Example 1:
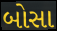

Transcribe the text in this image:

બોસા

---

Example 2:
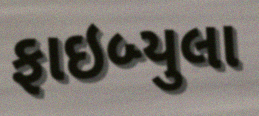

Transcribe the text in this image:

ફાઇબ્યુલા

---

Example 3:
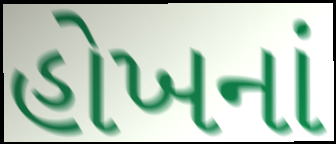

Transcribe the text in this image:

હોખનાં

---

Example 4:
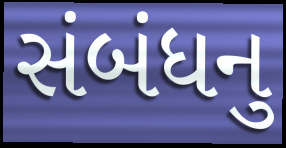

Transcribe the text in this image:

સંબંધનુ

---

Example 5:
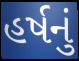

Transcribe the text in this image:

હર્ષનું